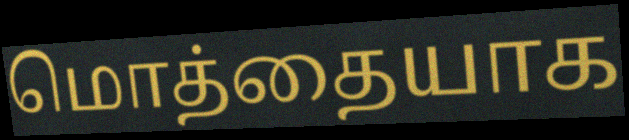
மொத்தையாக